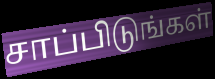
சாப்பிடுங்கள்